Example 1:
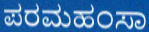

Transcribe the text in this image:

ಪರಮಹಂಸಾ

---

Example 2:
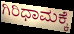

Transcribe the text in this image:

ಗಿರಿಧಾಮಕ್ಕೆ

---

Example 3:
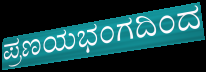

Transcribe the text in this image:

ಪ್ರಣಯಭಂಗದಿಂದ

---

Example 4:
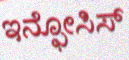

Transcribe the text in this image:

ಇನ್ಫೋಸಿಸ್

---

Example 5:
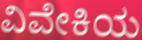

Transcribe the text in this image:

ವಿವೇಕಿಯ